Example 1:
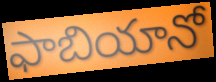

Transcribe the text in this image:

ఫాబియానో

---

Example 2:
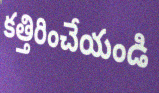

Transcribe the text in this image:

కత్తిరించేయండి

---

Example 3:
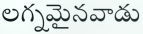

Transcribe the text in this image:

లగ్నమైనవాడు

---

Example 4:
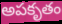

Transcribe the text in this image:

అపకృతం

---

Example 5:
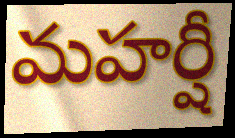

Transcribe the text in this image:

మహర్షీ